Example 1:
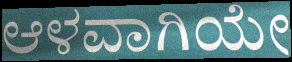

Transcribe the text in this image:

ಆಳವಾಗಿಯೇ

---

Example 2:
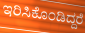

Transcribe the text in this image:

ಇರಿಸಿಕೊಂಡಿದ್ದರೆ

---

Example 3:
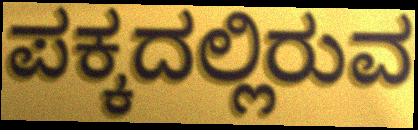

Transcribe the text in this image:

ಪಕ್ಕದಲ್ಲಿರುವ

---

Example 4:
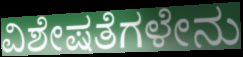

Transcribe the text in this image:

ವಿಶೇಷತೆಗಳೇನು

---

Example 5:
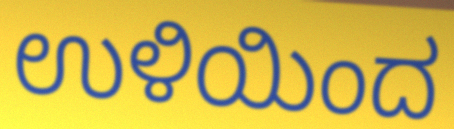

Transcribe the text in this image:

ಉಳಿಯಿಂದ